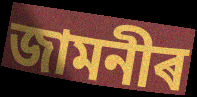
জামনীৰ